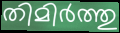
തിമിർത്തു